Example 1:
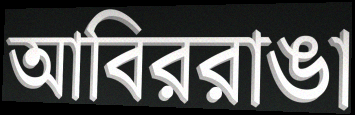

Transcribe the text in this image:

আবিররাঙা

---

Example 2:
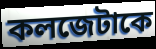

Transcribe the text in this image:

কলজেটাকে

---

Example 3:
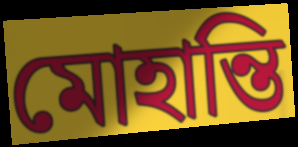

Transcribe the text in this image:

মোহান্তি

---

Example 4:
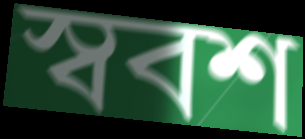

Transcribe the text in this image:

স্ববশ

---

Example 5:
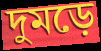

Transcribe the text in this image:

দুমড়ে